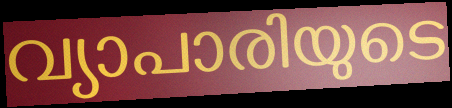
വ്യാപാരിയുടെ